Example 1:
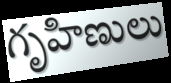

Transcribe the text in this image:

గృహిణులు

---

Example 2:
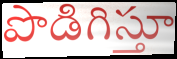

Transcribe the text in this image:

పొడిగిస్తూ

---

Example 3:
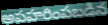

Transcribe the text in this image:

అపహరింపబడిన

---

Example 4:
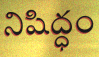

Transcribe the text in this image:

నిషిద్ధం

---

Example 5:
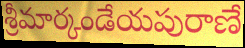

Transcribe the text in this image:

శ్రీమార్కండేయపురాణే